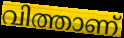
വിത്താണ്